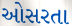
ઓસરતા